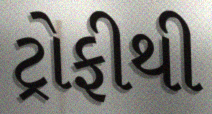
ટ્રોફીથી